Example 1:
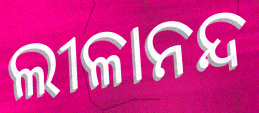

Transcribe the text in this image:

ଲୀଳାନନ୍ଦ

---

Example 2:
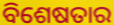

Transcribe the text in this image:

ବିଶେଷତାର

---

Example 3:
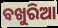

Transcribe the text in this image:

ବଖୁରିଆ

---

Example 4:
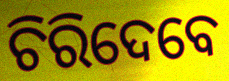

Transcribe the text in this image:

ଚିରିଦେବେ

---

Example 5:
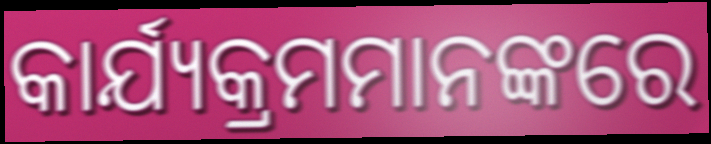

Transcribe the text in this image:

କାର୍ଯ୍ୟକ୍ରମମାନଙ୍କରେ